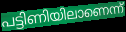
പട്ടിണിയിലാണെന്ന്